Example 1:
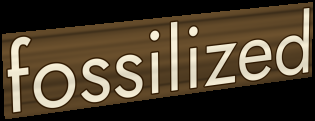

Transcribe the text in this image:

fossilized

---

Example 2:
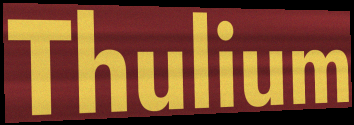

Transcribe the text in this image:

Thulium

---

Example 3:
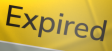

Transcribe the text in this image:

Expired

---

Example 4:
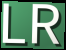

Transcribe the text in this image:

LR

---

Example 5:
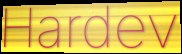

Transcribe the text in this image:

Hardev